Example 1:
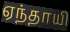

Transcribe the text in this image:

ஏந்தாயி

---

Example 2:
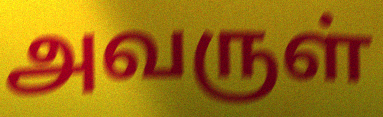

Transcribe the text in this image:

அவருள்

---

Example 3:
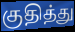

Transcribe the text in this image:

குதித்து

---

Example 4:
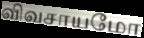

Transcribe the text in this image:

விவசாயமோ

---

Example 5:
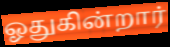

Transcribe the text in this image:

ஓதுகின்றார்